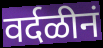
वर्दळीनं